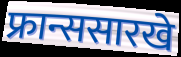
फ्रान्ससारखे